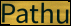
Pathu